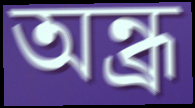
অন্ধ্র